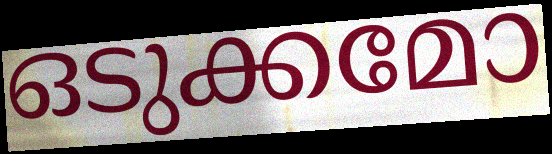
ഒടുക്കമോ